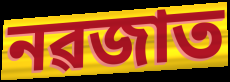
নৱজাত